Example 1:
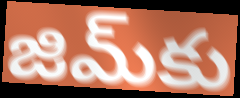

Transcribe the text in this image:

జిమ్‌కు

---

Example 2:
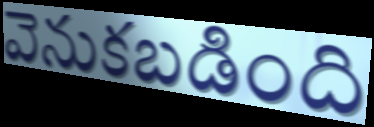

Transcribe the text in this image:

వెనుకబడింది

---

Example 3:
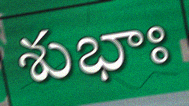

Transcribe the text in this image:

శుభాః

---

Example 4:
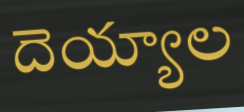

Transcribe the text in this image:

దెయ్యాల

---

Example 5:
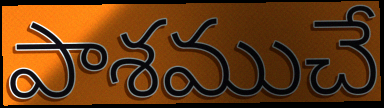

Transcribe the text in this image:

పాశముచే